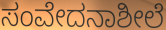
ಸಂವೇದನಾಶೀಲೆ